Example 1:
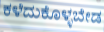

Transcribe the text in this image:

ಕಳೆದುಕೊಳ್ಳಬೇಡ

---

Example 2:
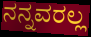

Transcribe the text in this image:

ನನ್ನವರಲ್ಲ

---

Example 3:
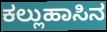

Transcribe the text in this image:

ಕಲ್ಲುಹಾಸಿನ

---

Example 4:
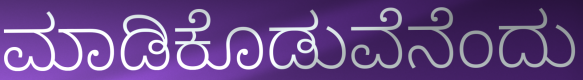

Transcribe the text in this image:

ಮಾಡಿಕೊಡುವೆನೆಂದು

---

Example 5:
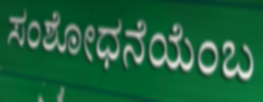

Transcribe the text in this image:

ಸಂಶೋಧನೆಯೆಂಬ